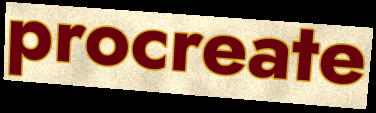
procreate